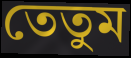
তেতুম